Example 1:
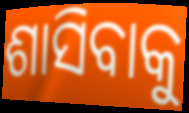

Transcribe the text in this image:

ଶାସିବାକୁ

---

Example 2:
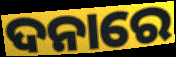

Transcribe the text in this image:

ଦନାରେ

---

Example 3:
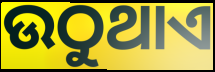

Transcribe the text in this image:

ଉଠୁଥାଏ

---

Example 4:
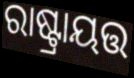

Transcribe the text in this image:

ରାଷ୍ଟ୍ରାୟତ୍ତ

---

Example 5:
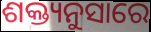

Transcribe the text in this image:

ଶକ୍ତ୍ୟନୁସାରେ